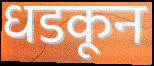
धडकून